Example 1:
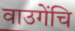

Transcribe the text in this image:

वाउगेंचि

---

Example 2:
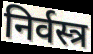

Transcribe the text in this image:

निर्वस्त्र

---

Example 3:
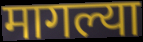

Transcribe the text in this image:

मागल्या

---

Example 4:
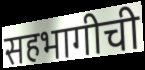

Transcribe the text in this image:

सहभागीची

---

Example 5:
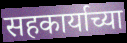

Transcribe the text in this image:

सहकार्याच्या